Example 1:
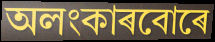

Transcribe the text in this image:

অলংকাৰবোৰে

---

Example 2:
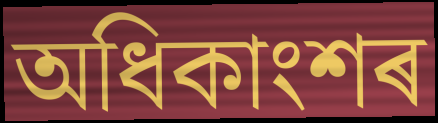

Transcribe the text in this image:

অধিকাংশৰ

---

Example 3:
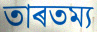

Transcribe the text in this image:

তাৰতম্য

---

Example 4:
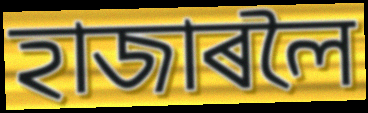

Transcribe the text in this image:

হাজাৰলৈ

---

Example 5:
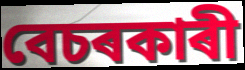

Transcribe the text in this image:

বেচৰকাৰী